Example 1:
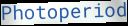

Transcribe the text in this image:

Photoperiod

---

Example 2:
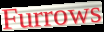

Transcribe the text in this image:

Furrows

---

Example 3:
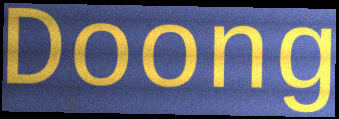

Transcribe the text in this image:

Doong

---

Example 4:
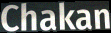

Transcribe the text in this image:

Chakan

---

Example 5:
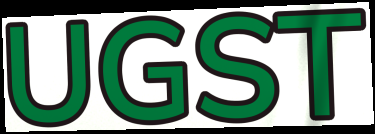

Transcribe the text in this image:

UGST